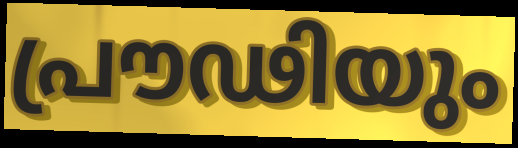
പ്രൗഢിയും